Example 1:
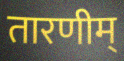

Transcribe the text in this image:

तारणीम्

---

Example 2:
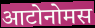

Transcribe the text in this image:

आटोनोमस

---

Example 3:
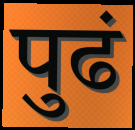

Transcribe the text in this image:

पुढं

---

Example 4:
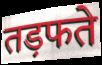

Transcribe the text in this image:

तड़फते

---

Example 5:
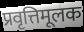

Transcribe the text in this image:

प्रवृत्तिमूलक